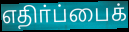
எதிர்ப்பைக்